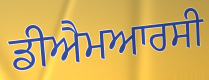
ਡੀਐਮਆਰਸੀ